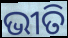
ଭୀତି